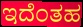
ಇದೆಂತಹ